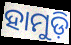
ହାମୁଡ଼ି